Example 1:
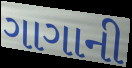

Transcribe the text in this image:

ગાગાની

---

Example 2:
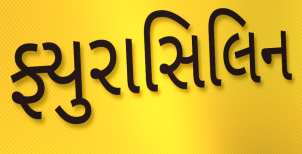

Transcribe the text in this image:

ફ્યુરાસિલિન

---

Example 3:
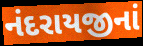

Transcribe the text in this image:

નંદરાયજીનાં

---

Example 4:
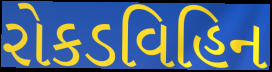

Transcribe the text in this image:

રોકડવિહિન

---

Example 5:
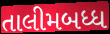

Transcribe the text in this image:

તાલીમબધ્ધ